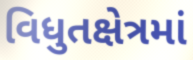
વિધુતક્ષેત્રમાં